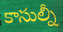
కాసుల్నీ